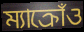
ম্যাক্রোঁও